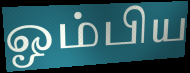
ஓம்பிய